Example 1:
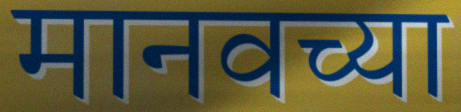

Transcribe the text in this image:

मानवच्या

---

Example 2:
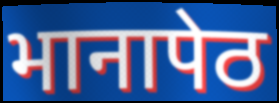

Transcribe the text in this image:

भानापेठ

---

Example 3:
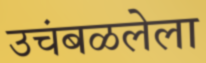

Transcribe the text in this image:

उचंबळलेला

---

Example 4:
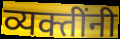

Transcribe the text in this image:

व्यक्‍तींनी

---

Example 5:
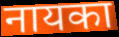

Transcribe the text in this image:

नायका